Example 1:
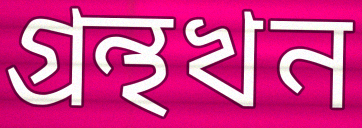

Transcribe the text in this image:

গ্ৰন্থখন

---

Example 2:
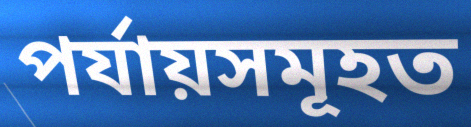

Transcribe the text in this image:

পৰ্যায়সমূহত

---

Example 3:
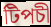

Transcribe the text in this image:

টিপচী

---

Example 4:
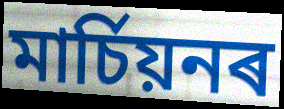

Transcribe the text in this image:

মাৰ্চিয়নৰ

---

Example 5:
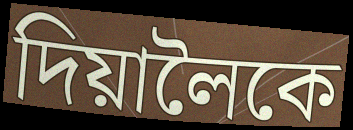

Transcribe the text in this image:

দিয়ালৈকে